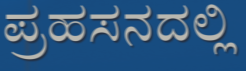
ಪ್ರಹಸನದಲ್ಲಿ